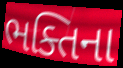
ભક્તિના